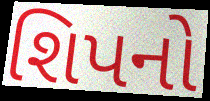
શિપનો